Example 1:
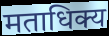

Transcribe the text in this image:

मताधिक्‍य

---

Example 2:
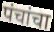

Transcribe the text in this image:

पंचांचा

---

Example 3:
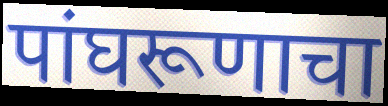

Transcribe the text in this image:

पांघरूणाचा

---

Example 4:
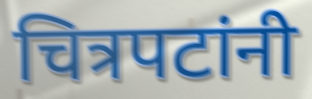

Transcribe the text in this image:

चित्रपटांनी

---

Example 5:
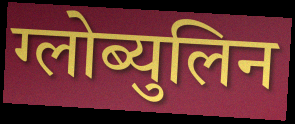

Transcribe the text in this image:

ग्लोब्युलिन